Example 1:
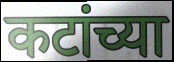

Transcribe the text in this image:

कटांच्या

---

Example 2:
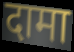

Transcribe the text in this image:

दामा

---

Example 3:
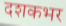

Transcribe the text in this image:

दशकभर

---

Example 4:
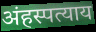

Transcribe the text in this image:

अंहस्पत्याय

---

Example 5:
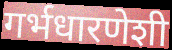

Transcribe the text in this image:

गर्भधारणेशी